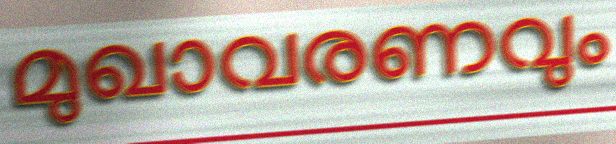
മുഖാവരണവും